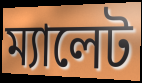
ম্যালেট